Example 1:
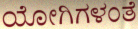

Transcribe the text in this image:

ಯೋಗಿಗಳಂತೆ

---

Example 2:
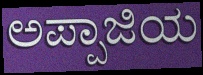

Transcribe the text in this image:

ಅಪ್ಪಾಜಿಯ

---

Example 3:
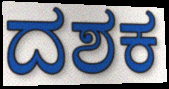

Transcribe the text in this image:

ದಶಕ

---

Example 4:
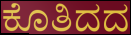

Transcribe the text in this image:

ಕೊತಿದದ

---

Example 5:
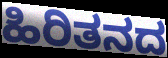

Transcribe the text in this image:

ಹಿರಿತನದ